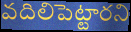
వదిలిపెట్టారని